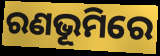
ରଣଭୂମିରେ